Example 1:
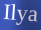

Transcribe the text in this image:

Ilya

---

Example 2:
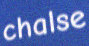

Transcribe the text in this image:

chalse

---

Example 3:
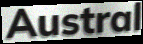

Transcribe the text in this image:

Austral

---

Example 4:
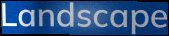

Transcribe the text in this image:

Landscape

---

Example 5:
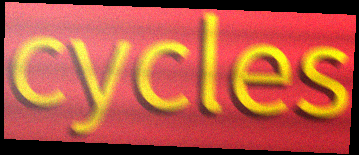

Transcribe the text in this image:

cycles